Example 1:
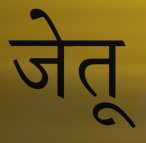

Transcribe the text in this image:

जेतू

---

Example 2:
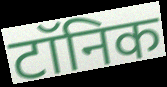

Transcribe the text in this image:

टॉनिक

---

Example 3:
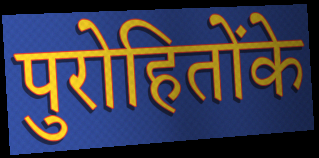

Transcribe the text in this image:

पुरोहितोंके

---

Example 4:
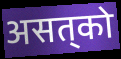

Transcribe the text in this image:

असत्‌को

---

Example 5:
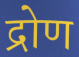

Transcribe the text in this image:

द्रोण